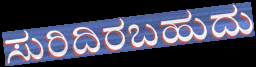
ಸುರಿದಿರಬಹುದು